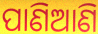
ପାଣିଆଣି